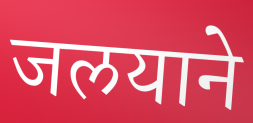
जलयाने